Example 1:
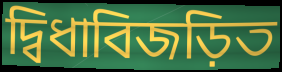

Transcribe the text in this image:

দ্বিধাবিজড়িত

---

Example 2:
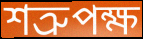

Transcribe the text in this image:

শত্রুপক্ষ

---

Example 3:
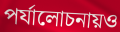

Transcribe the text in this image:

পর্যালোচনায়ও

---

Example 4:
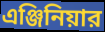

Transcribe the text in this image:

এঞ্জিনিয়ার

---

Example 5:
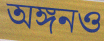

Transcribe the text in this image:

অঙ্গনও